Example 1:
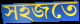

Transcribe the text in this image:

সহজতে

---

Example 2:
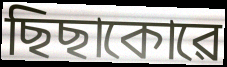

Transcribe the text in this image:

ছিছাকোৱে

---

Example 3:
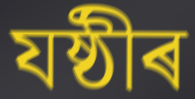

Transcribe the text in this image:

যষ্ঠীৰ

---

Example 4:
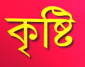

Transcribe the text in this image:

কৃষ্টি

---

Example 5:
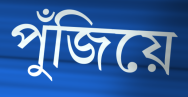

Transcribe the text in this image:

পুঁজিয়ে